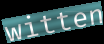
witten